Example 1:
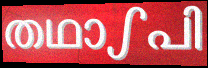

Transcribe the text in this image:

തഥാഽപി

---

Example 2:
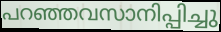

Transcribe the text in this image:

പറഞ്ഞവസാനിപ്പിച്ചു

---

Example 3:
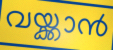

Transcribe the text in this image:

വയ്ക്കാൻ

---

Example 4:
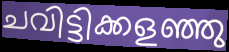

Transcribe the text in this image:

ചവിട്ടിക്കളഞ്ഞു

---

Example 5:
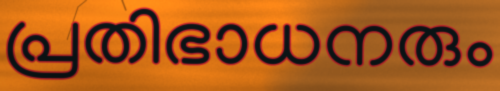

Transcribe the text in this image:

പ്രതിഭാധനരും